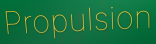
Propulsion